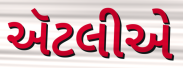
ઍટલીએ